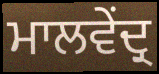
ਮਾਲਵੇਂਦ੍ਰ